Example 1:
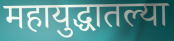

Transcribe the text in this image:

महायुद्धातल्या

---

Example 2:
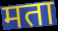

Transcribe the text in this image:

मता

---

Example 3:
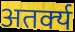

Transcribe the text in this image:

अतर्क्य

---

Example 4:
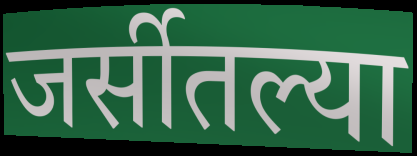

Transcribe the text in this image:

जर्सीतल्या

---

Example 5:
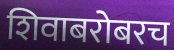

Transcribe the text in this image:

शिवाबरोबरच